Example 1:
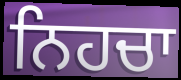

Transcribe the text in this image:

ਨਿਹਚਾ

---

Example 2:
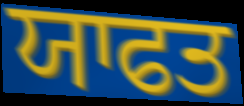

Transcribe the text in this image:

ਯਾਫਤ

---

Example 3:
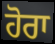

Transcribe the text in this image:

ਹੋਰਾ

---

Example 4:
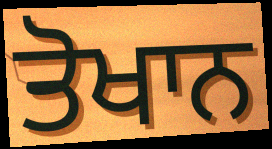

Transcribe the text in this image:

ਤੋਖਾਨ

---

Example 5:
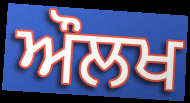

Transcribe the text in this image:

ਔਲਖ